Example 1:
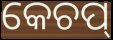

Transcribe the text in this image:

କେଚପ୍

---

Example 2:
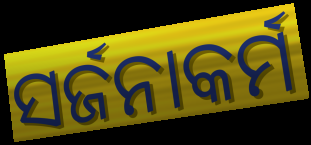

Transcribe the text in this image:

ସର୍ଜନାକର୍ମ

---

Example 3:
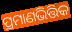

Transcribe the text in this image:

ପ୍ରମାଣଭିତ୍ତିକ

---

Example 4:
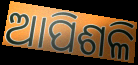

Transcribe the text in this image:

ଆପିଶଳି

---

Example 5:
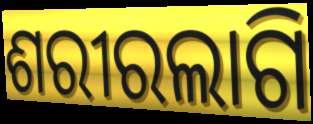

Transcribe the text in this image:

ଶରୀରଲାଗି